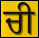
ਚੀ